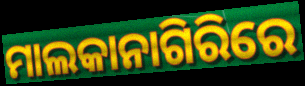
ମାଲକାନାଗିରିରେ